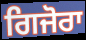
ਗਿਜੋਰਾ